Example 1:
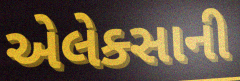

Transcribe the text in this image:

એલેક્સાની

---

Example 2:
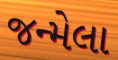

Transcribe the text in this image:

જન્મેલા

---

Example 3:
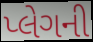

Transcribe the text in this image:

પ્લેગની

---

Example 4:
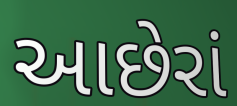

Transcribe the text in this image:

આછેરાં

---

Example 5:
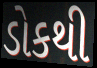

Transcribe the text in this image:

ડોકથી